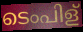
ടെംപിള്